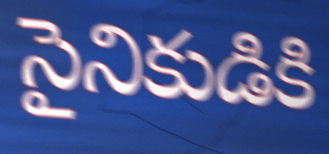
సైనికుడికి